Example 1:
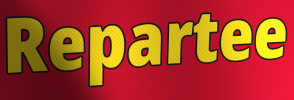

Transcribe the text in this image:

Repartee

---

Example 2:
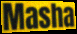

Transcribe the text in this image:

Masha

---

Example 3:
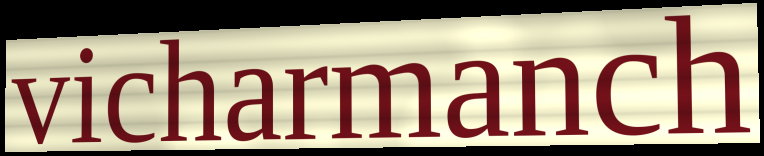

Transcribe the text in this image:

vicharmanch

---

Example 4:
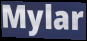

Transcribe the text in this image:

Mylar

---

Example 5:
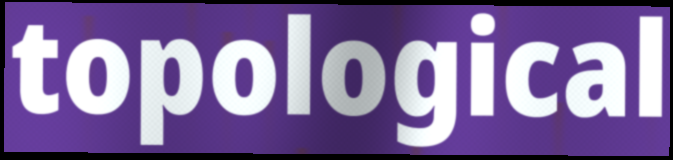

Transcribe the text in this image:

topological